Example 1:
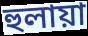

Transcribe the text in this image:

হুলায়া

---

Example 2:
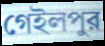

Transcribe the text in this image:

গেইলপুর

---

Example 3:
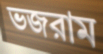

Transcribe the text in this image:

ভজরাম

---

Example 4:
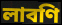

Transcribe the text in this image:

লাবণি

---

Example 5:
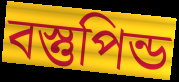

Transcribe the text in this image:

বস্তুপিন্ড